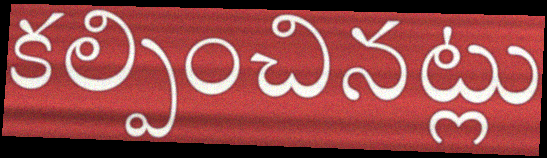
కల్పించినట్లు